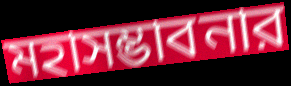
মহাসম্ভাবনার